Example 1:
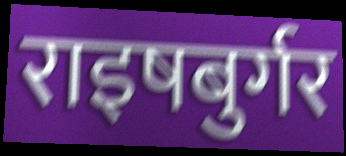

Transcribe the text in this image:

राइषबुर्गर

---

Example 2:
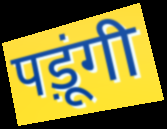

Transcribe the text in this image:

पड़ूंगी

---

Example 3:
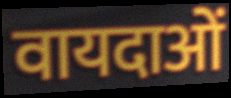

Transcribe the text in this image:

वायदाओं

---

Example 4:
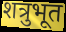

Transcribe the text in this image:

शत्रुभूत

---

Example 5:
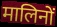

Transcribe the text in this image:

मालिनों